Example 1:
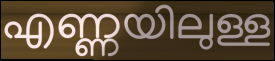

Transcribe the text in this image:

എണ്ണയിലുള്ള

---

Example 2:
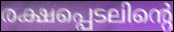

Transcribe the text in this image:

രക്ഷപ്പെടലിന്റെ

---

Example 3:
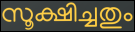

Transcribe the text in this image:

സൂക്ഷിച്ചതും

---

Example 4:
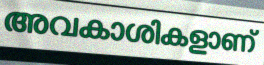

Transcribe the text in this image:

അവകാശികളാണ്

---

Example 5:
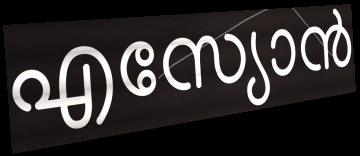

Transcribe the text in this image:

എസ്യോൻ